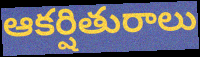
ఆకర్షితురాలు